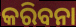
କରିବନା